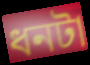
ধনটা